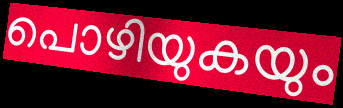
പൊഴിയുകയും